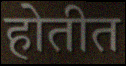
होतीत